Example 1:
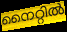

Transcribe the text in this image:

നൈറ്റിൽ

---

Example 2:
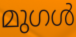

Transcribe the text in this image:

മുഗൾ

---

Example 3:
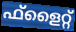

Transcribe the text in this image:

ഫ്ളൈറ്റ്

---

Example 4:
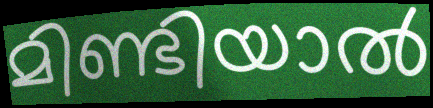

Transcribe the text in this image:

മിണ്ടിയാൽ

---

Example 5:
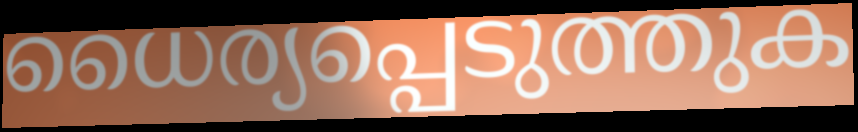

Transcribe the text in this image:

ധൈര്യപ്പെടുത്തുക